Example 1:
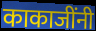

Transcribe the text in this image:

काकाजींनी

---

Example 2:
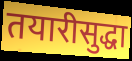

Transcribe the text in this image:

तयारीसुद्धा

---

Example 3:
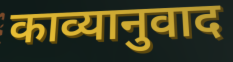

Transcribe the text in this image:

काव्यानुवाद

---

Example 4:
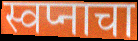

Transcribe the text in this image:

स्वप्नाचा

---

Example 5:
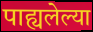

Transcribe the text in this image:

पाह्यलेल्या